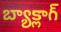
బ్యాక్లాగ్